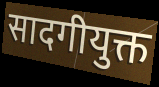
सादगीयुक्त